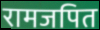
रामजपित